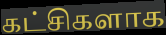
கட்சிகளாக